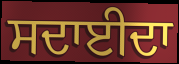
ਸਦਾਈਦਾ